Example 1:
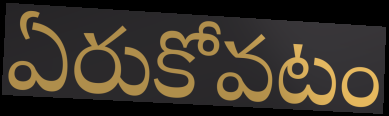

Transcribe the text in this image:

ఏరుకోవటం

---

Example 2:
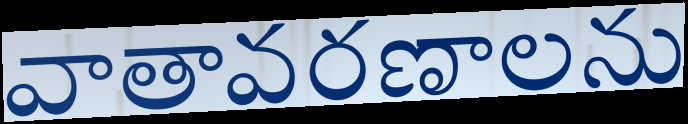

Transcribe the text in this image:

వాతావరణాలను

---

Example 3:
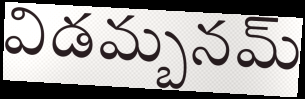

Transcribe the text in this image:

విడమ్బనమ్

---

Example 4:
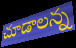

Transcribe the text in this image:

చూడాలన్న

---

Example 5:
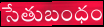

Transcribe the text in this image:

సేతుబంధం